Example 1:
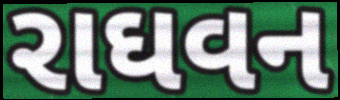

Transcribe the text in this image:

રાઘવન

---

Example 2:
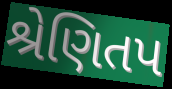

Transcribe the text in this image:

શ્રેણિતપ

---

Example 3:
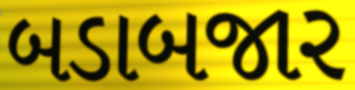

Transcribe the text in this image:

બડાબજાર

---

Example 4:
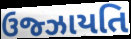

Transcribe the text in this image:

ઉજ્ઝાયતિ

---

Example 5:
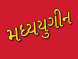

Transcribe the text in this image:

મધ્યયુગીન